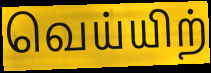
வெய்யிற்